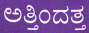
ಅತ್ತಿಂದತ್ತ